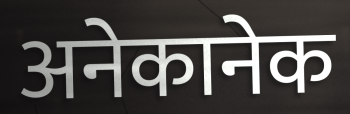
अनेकानेक